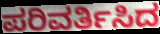
ಪರಿವರ್ತಿಸಿದ